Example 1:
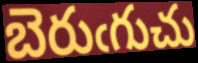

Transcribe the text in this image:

బెరుఁగుచు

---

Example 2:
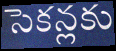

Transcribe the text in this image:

సెకన్లకు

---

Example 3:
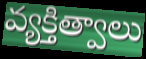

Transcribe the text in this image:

వ్యక్తిత్వాలు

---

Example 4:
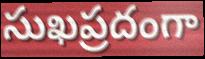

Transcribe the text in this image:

సుఖప్రదంగా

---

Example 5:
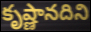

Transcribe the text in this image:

కృష్ణానదిని